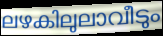
ലഴകിലുലാവീടും